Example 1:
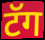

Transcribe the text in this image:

टॅग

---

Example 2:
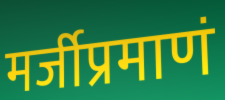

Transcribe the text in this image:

मर्जीप्रमाणं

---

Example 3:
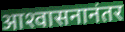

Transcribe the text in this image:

आश्वासनानंतर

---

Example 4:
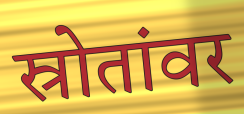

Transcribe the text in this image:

स्रोतांवर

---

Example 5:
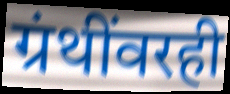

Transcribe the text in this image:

ग्रंथींवरही